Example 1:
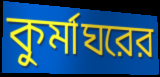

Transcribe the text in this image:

কুর্মাঘরের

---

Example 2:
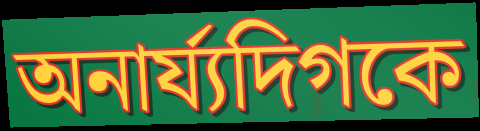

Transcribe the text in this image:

অনার্য্যদিগকে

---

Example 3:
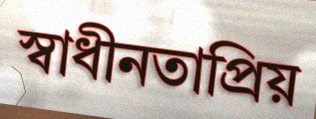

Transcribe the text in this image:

স্বাধীনতাপ্রিয়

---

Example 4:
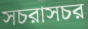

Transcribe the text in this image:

সচরাসচর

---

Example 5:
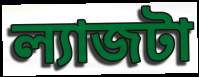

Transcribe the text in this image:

ল্যাজটা